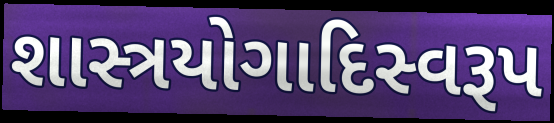
શાસ્ત્રયોગાદિસ્વરૂપ